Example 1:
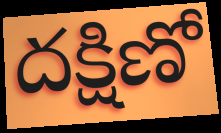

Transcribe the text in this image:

దక్షిణో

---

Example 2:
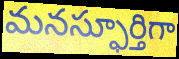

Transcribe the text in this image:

మనస్ఫూర్తిగా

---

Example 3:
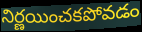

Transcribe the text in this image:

నిర్ణయించకపోవడం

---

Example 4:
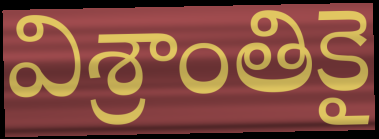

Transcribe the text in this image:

విశ్రాంతికై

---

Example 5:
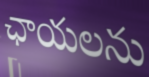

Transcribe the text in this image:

ఛాయలను